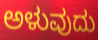
ಅಳುವುದು